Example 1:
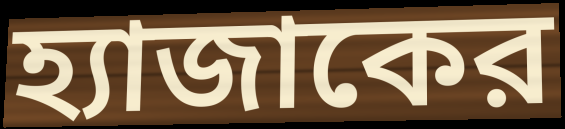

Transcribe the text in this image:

হ্যাজাকের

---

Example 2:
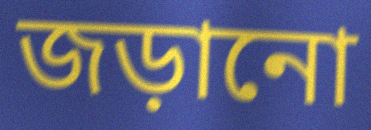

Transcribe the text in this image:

জড়ানো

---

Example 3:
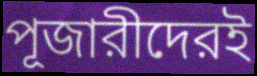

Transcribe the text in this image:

পূজারীদেরই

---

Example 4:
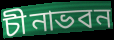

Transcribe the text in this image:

চীনাভবন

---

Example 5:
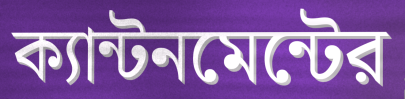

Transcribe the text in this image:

ক্যান্টনমেন্টের